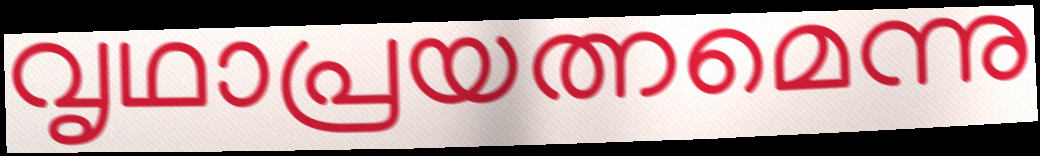
വൃഥാപ്രയത്നമെന്നു